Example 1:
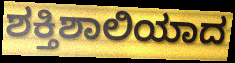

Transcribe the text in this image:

ಶಕ್ತಿಶಾಲಿಯಾದ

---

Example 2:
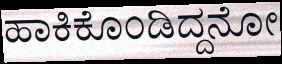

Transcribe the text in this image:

ಹಾಕಿಕೊಂಡಿದ್ದನೋ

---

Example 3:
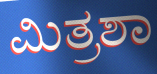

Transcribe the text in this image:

ಮಿತ್ರಶಾ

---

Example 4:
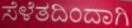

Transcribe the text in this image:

ಸೆಳೆತದಿಂದಾಗಿ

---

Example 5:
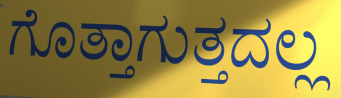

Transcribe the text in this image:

ಗೊತ್ತಾಗುತ್ತದಲ್ಲ